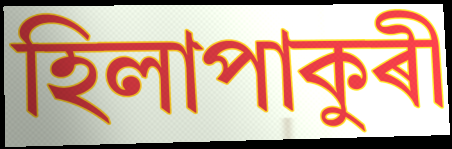
হিলাপাকুৰী